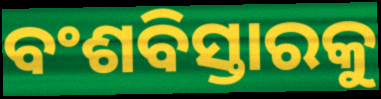
ବଂଶବିସ୍ତାରକୁ